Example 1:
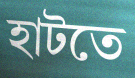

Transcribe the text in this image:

হাটতে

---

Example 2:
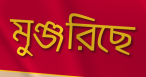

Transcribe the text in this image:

মুঞ্জরিছে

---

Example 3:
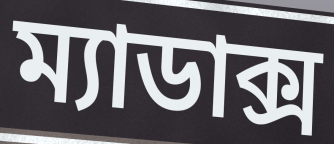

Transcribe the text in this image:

ম্যাডাক্স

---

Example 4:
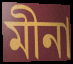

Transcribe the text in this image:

মীনা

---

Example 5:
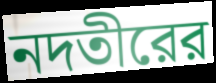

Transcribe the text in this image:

নদতীরের